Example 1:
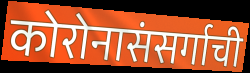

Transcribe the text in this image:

कोरोनासंसर्गाची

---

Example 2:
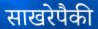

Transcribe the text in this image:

साखरेपैकी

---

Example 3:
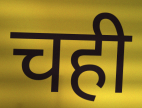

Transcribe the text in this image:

चही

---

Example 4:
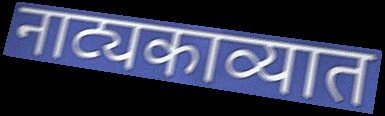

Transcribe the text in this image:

नाट्यकाव्यात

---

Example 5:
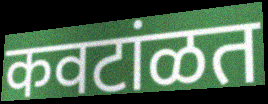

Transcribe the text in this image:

कवटांळत